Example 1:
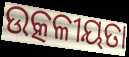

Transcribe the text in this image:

ଉତ୍କଳୀୟତା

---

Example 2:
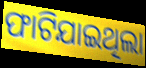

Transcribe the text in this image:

ଫାଟିଯାଇଥିଲା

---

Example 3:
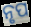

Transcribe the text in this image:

ନୃପ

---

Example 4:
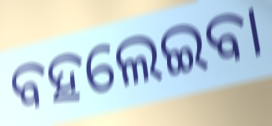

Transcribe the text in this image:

ବହଲେଇବା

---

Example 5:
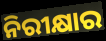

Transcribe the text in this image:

ନିରୀକ୍ଷାର